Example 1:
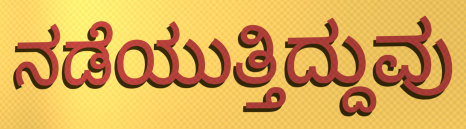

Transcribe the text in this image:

ನಡೆಯುತ್ತಿದ್ದುವು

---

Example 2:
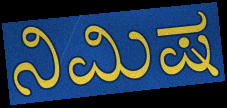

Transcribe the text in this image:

ನಿಮಿಷ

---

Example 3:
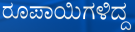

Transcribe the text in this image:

ರೂಪಾಯಿಗಳಿದ್ದ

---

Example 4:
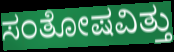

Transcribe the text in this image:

ಸಂತೋಷವಿತ್ತು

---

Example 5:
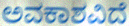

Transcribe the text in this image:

ಅವಕಾಶವಿದೆ